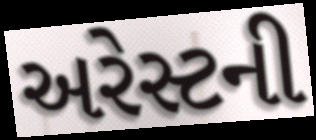
અરેસ્ટની